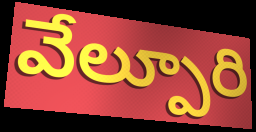
వేల్పూరి